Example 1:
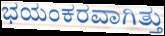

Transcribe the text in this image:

ಭಯಂಕರವಾಗಿತ್ತು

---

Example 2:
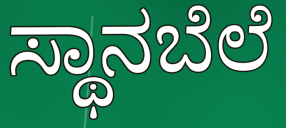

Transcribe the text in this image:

ಸ್ಥಾನಬೆಲೆ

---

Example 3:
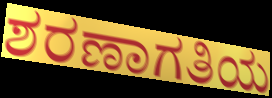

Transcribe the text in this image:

ಶರಣಾಗತಿಯ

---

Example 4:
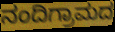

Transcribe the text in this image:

ನಂದಿಗ್ರಾಮದ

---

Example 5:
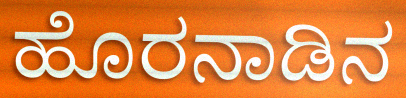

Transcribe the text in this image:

ಹೊರನಾಡಿನ